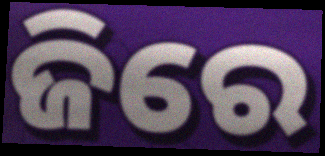
ଜିରେ